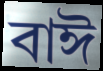
বাঈ